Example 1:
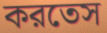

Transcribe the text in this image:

করতেস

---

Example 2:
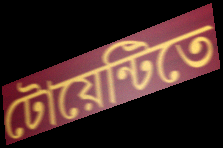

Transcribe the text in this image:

টোয়েন্টিতে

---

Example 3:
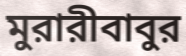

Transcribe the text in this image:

মুরারীবাবুর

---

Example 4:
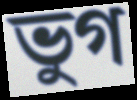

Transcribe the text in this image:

ভুগ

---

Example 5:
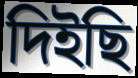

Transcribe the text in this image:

দিইছি